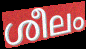
ശീലം